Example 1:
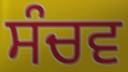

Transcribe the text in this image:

ਸੰਚਵ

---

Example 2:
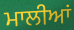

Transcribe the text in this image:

ਮਾਲੀਆਂ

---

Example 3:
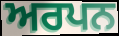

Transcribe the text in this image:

ਅਰਪਨ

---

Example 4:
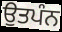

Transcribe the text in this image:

ਉਤਪੰਨ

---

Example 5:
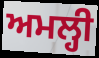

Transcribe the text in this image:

ਅਮਲ੍ਹੀ